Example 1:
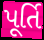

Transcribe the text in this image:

પૂર્તિ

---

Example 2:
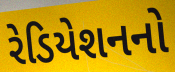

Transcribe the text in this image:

રેડિયેશનનો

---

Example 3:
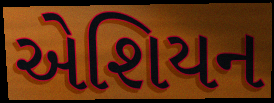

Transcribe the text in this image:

એશિયન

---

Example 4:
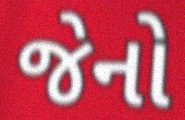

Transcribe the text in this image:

જેનો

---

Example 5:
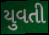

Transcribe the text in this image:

યુવતી